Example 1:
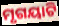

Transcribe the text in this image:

ମୃଗୟାଟି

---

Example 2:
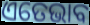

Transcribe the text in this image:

ଏତେଭାବ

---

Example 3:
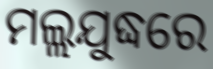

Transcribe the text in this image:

ମଲ୍ଲଯୁଦ୍ଧରେ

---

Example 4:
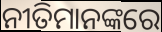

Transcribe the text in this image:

ନୀତିମାନଙ୍କରେ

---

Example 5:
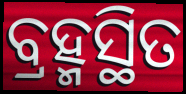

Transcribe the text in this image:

ବ୍ରହ୍ମସ୍ଥିତ